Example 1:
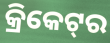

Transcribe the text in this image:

କ୍ରିକେଟ୍‌ର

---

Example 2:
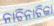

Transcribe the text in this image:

ନାଚିନାଚିକା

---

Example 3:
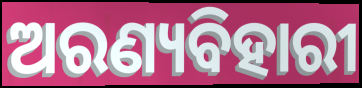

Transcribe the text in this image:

ଅରଣ୍ୟବିହାରୀ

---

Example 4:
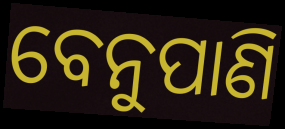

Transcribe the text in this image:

ବେନୁପାଣି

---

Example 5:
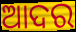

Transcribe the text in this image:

ଆଦର